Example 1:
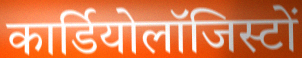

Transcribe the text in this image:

कार्डियोलॉजिस्टों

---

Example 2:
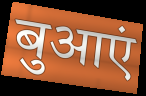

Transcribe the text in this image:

बुआएं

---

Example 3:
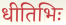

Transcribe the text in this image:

धीतिभिः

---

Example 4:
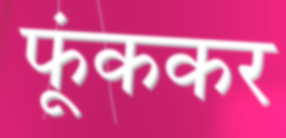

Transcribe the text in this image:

फूंककर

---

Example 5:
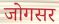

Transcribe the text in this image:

जोगसर